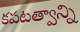
కపటత్వాన్ని